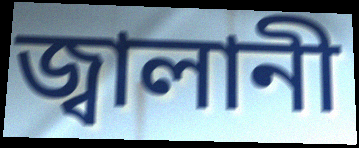
জ্বালানী